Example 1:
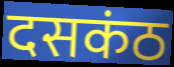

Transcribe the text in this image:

दसकंठ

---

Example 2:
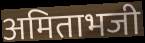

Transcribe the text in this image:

अमिताभजी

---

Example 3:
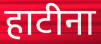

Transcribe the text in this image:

हाटीना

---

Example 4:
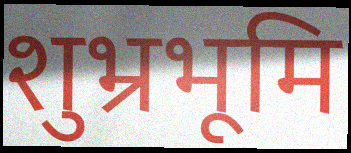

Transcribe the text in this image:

शुभ्रभूमि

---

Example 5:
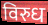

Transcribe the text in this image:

विरुध